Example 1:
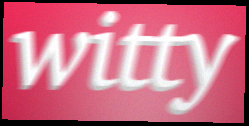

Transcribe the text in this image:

witty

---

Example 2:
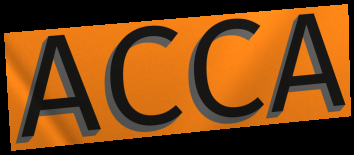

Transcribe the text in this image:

ACCA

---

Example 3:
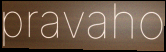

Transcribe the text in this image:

pravaho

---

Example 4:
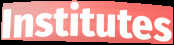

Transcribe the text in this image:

Institutes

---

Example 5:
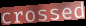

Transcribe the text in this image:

crossed